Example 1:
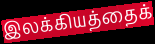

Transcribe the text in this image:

இலக்கியத்தைக்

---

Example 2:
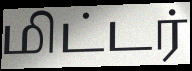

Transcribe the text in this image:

மிட்டர்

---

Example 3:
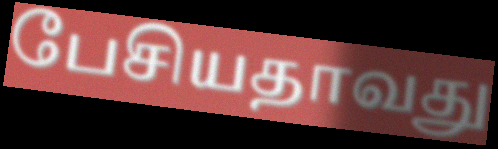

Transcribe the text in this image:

பேசியதாவது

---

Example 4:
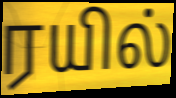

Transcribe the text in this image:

ரயில்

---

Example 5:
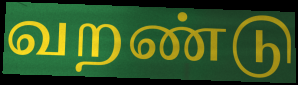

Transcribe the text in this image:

வறண்டு